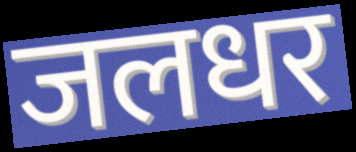
जलधर